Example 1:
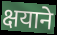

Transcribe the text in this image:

क्षयाने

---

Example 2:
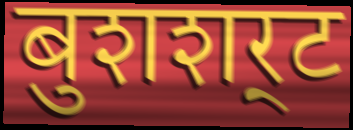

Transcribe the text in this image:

बुशशर्ट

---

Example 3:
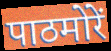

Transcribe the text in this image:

पाठमोरें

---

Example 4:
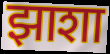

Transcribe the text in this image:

झाशा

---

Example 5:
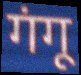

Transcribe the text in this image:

गंगू